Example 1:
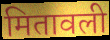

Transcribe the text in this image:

मितावली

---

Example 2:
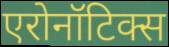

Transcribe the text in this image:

एरोनॉटिक्स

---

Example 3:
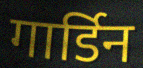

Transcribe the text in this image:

गार्डिन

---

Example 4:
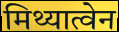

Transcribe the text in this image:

मिथ्यात्वेन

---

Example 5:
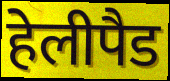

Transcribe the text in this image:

हेलीपैड